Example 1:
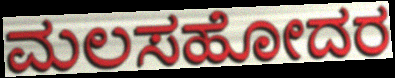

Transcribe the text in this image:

ಮಲಸಹೋದರ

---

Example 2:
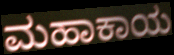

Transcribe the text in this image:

ಮಹಾಕಾಯ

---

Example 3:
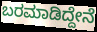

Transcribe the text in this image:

ಬರಮಾಡಿದ್ದೇನೆ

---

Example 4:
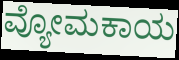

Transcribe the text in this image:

ವ್ಯೋಮಕಾಯ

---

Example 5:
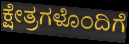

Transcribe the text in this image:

ಕ್ಷೇತ್ರಗಳೊಂದಿಗೆ